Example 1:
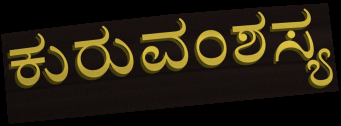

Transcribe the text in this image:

ಕುರುವಂಶಸ್ಯ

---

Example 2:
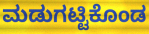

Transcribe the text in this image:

ಮಡುಗಟ್ಟಿಕೊಂಡ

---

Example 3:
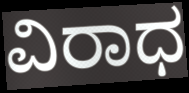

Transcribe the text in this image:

ವಿರಾಧ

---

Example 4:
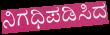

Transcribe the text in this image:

ನಿಗಧಿಪಡಿಸಿದ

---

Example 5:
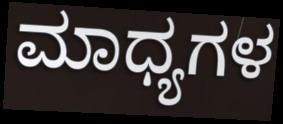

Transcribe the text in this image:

ಮಾಧ್ಯಗಳ